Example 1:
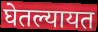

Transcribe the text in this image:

घेतल्यायत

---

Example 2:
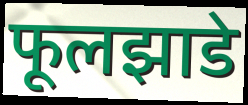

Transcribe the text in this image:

फूलझाडे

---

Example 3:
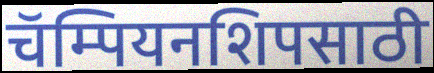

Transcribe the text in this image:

चॅम्पियनशिपसाठी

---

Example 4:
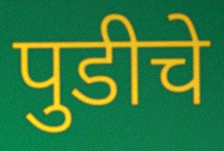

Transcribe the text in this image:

पुडीचे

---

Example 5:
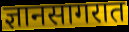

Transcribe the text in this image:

ज्ञानसागरात